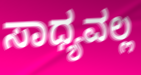
ಸಾಧ್ಯವಲ್ಲ